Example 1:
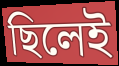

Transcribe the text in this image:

ছিলেই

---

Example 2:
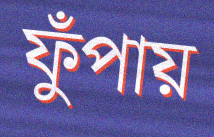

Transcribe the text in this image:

ফুঁপায়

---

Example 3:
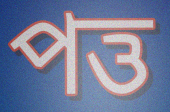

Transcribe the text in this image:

পত্ত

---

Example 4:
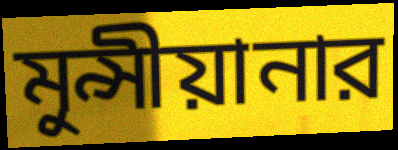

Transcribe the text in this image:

মুন্সীয়ানার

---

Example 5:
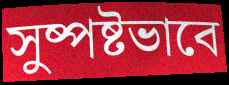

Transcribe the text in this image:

সুষ্পষ্টভাবে